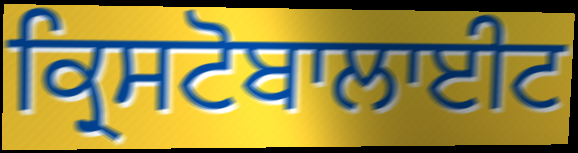
ਕ੍ਰਿਸਟੋਬਾਲਾਈਟ